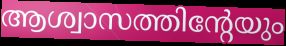
ആശ്വാസത്തിന്റേയും